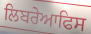
ਲਿਬਰੇਆਫਿਸ